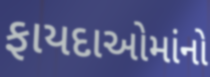
ફાયદાઓમાંનો